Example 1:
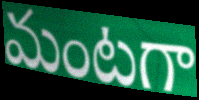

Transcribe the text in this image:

మంటగా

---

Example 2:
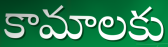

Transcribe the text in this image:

కామాలకు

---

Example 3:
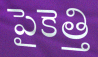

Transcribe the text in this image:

పైకెత్తి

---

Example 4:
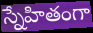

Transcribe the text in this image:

స్నేహితంగా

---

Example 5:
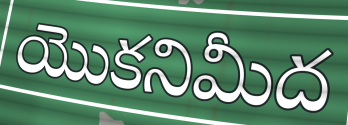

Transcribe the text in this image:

యొకనిమీద